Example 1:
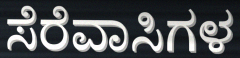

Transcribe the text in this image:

ಸೆರೆವಾಸಿಗಳ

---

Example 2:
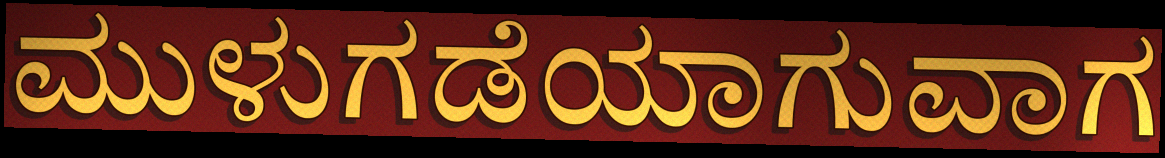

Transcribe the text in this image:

ಮುಳುಗಡೆಯಾಗುವಾಗ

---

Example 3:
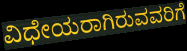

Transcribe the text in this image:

ವಿಧೇಯರಾಗಿರುವವರಿಗೆ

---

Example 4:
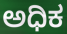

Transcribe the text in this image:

ಅಧಿಕ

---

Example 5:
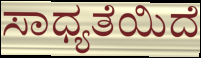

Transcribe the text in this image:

ಸಾಧ್ಯತೆಯಿದೆ